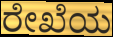
ರೇಖೆಯ